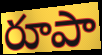
రూపా